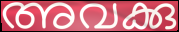
അവക്കു